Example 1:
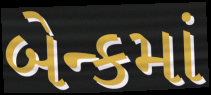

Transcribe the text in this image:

બેન્કમાં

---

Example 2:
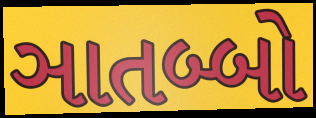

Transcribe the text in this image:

ઞાતબ્બો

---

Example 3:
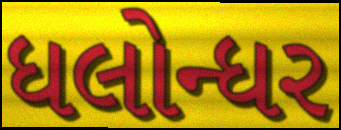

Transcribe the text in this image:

ધલોન્ધર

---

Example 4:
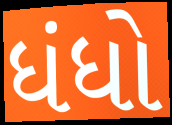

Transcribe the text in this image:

ધંધો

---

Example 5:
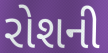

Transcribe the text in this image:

રોશની